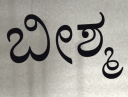
ಬೀಶ್ಮ